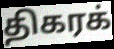
திகரக்